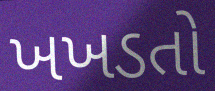
ખખડતો